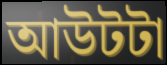
আউটটা